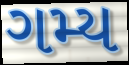
ગમ્ય